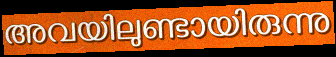
അവയിലുണ്ടായിരുന്നു